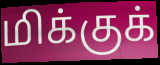
மிக்குக்